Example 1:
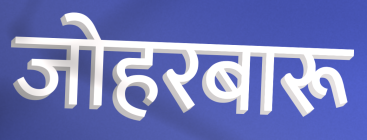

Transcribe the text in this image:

जोहरबारू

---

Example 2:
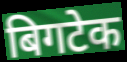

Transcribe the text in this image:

बिगटेक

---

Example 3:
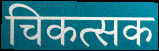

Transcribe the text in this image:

चिकत्सक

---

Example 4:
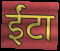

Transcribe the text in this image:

ईंटा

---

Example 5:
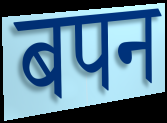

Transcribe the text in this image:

बपन